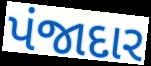
પંજાદાર